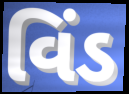
વિંડ